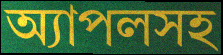
অ্যাপলসহ